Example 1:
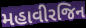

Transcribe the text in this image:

મહાવીરજિન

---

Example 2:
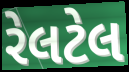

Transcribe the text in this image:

રેલટેલ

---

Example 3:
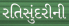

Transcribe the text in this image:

રતિસુંદરીની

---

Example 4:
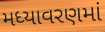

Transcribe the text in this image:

મધ્યાવરણમાં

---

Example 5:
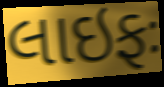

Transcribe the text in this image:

લાઇફઃ